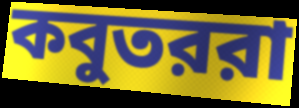
কবুতররা